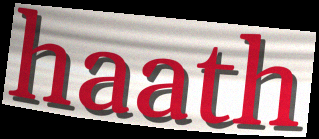
haath